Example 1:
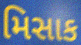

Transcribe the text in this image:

મિસાક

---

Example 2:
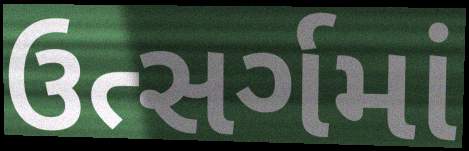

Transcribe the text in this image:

ઉત્સર્ગમાં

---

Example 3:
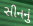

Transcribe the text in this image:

સીનનું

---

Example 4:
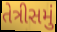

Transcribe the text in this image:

તેત્રીસમું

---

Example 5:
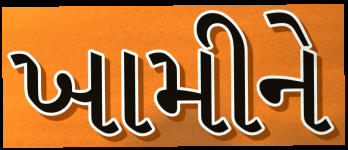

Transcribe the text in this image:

ખામીને